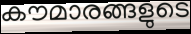
കൗമാരങ്ങളുടെ